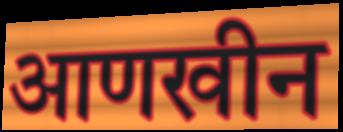
आणखीन